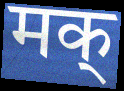
मक्